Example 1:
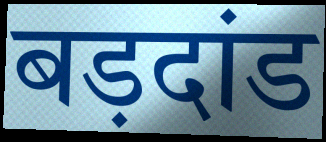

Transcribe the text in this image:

बड़दांड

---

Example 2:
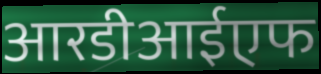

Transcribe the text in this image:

आरडीआईएफ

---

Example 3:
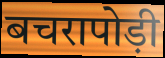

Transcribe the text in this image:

बचरापोड़ी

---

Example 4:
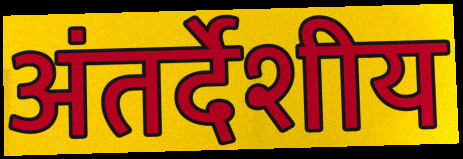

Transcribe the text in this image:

अंतर्देशीय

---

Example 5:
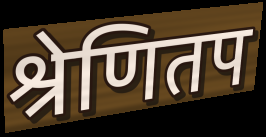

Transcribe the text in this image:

श्रेणितप